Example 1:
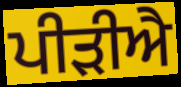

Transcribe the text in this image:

ਪੀੜੀਐ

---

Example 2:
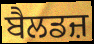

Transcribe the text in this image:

ਬੈਲਡਜ਼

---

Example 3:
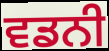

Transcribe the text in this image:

ਵਡਨੀ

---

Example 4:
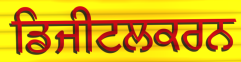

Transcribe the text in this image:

ਡਿਜੀਟਲਕਰਨ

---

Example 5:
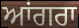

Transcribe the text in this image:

ਆਂਗਰਾ